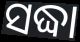
ସଦ୍ଧା